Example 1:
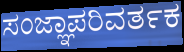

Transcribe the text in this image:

ಸಂಜ್ಞಾಪರಿವರ್ತಕ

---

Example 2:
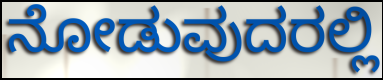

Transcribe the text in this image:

ನೋಡುವುದರಲ್ಲಿ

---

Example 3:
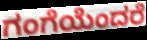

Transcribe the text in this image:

ಗಂಗೆಯೆಂದರೆ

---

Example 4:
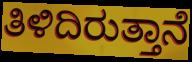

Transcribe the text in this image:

ತಿಳಿದಿರುತ್ತಾನೆ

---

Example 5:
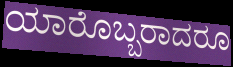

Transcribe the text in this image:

ಯಾರೊಬ್ಬರಾದರೂ